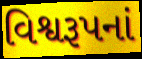
વિશ્વરૂપનાં